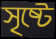
সৃষ্টে